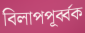
বিলাপপূর্ব্বক